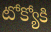
టోక్యోకి